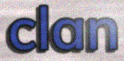
clan